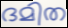
ദമിത